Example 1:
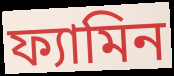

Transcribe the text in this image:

ফ্যামিন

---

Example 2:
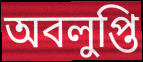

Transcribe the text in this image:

অবলুপ্তি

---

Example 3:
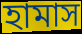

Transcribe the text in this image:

হামাস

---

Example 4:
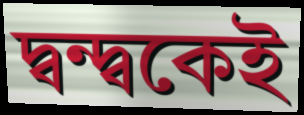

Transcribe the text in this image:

দ্বন্দ্বকেই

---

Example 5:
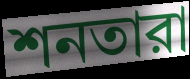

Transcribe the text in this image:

শনতারা